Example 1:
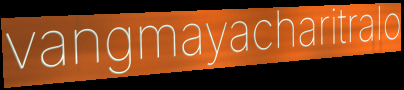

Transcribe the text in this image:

vangmayacharitralo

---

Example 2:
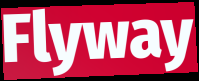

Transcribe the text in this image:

Flyway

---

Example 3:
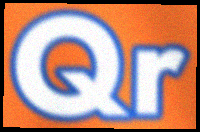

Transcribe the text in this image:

Qr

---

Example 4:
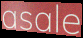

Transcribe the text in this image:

asale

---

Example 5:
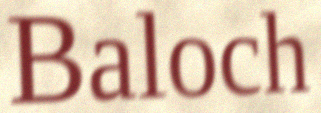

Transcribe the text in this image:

Baloch